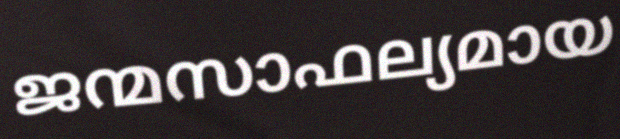
ജന്മസാഫല്യമായ